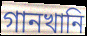
গানখানি